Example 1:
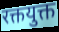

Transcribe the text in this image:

रक्तयुक्त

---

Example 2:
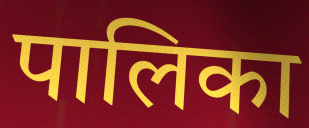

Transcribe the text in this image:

पालिका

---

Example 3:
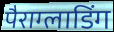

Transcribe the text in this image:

पैराग्लाडिंग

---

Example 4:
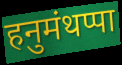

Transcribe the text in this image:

हनुमंथप्पा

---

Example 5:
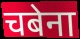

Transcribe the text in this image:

चबेना